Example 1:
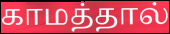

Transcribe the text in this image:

காமத்தால்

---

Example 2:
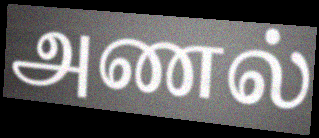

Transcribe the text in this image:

அணல்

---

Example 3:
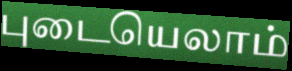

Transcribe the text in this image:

புடையெலாம்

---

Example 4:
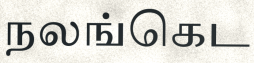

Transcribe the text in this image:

நலங்கெட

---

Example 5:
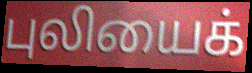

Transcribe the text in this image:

புலியைக்